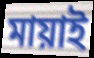
মায়াই